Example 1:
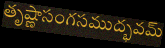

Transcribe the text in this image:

తృష్ణాసంగసముద్భవమ్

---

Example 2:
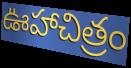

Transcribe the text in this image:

ఊహాచిత్రం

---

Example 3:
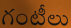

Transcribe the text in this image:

గంటీలు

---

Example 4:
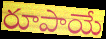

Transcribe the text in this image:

రూపాయే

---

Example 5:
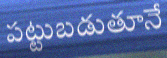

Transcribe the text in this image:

పట్టుబడుతూనే